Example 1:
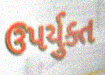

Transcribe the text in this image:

ઉપર્યુક્ત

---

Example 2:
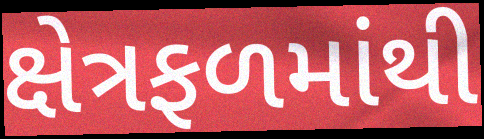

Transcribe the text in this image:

ક્ષેત્રફળમાંથી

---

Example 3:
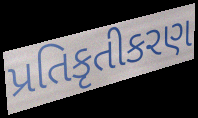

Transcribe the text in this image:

પ્રતિકૃતીકરણ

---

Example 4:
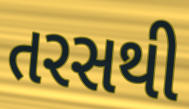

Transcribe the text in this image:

તરસથી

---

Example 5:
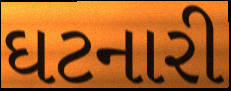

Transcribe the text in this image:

ઘટનારી